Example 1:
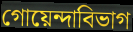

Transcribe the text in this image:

গোয়েন্দাবিভাগ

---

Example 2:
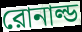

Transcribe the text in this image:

রোনাল্ড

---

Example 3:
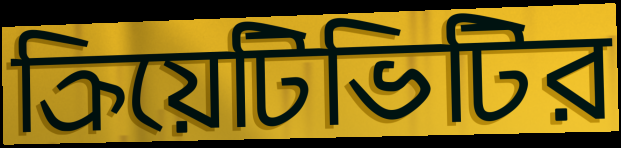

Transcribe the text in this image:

ক্রিয়েটিভিটির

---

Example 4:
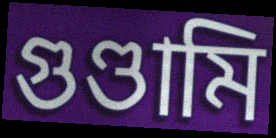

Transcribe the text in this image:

গুণ্ডামি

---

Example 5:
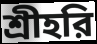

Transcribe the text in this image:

শ্রীহরি